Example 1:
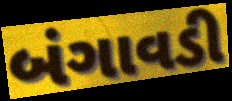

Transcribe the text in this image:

બંગાવડી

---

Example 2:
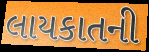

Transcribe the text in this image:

લાયકાતની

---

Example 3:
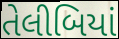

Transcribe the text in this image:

તેલીબિયાં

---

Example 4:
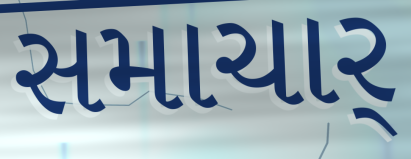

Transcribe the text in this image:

સમાચાર્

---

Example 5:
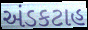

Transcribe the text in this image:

અંડકટાહ